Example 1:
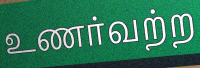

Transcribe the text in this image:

உணர்வற்ற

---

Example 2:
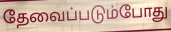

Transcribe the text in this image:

தேவைப்படும்போது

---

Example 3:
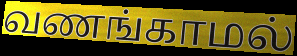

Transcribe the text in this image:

வணங்காமல்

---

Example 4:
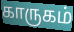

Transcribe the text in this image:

காருகம்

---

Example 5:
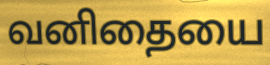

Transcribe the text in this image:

வனிதையை